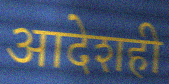
आदेशही